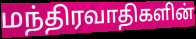
மந்திரவாதிகளின்